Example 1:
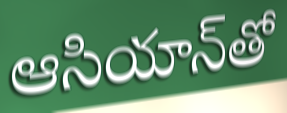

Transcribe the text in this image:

ఆసియాన్‌తో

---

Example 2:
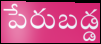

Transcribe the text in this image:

పేరుబడ్డ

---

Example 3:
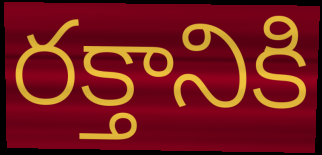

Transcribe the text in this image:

రక్తానికి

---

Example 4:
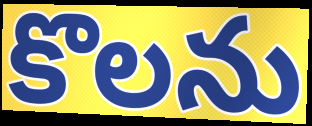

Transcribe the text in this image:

కొలను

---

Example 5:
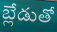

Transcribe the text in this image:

బ్లేడుతో